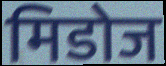
मिडोज